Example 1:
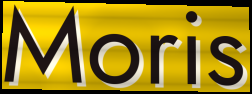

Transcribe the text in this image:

Moris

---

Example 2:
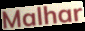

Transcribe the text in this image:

Malhar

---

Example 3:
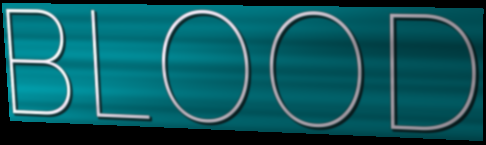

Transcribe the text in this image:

BLOOD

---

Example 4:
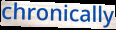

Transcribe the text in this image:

chronically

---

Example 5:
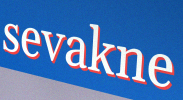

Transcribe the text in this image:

sevakne